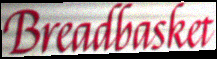
Breadbasket